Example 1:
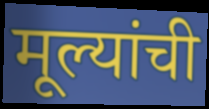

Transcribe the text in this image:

मूल्यांची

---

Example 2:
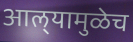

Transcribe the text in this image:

आल्यामुळेच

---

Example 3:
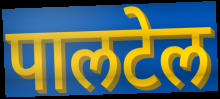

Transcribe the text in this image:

पालटेल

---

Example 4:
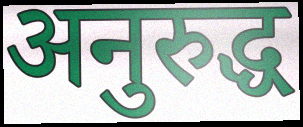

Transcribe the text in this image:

अनुरुद्ध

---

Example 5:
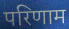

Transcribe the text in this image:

परिणाम